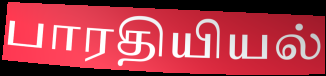
பாரதியியல்